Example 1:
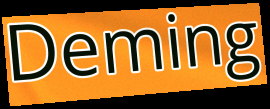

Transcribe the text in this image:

Deming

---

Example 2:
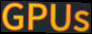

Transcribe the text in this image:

GPUs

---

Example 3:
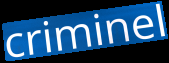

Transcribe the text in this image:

criminel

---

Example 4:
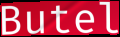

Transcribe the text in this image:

Butel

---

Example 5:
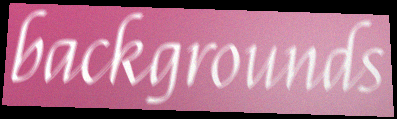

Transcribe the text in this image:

backgrounds